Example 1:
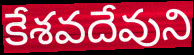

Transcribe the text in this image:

కేశవదేవుని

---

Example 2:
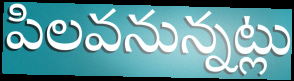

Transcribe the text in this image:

పిలవనున్నట్లు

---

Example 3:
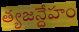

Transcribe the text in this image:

త్యజన్దేహం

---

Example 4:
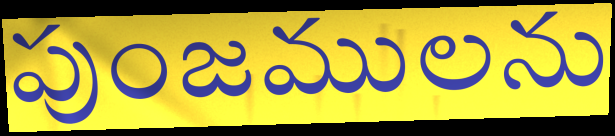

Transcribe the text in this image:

పుంజములను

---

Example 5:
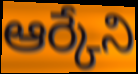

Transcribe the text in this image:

ఆర్కేని